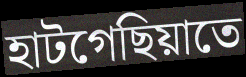
হাটগেছিয়াতে